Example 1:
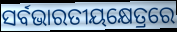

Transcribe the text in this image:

ସର୍ବଭାରତୀୟକ୍ଷେତ୍ରରେ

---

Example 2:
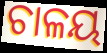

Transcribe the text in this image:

ଚାଳୟ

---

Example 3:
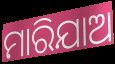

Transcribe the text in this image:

ମାରିଯାଅ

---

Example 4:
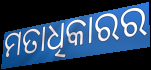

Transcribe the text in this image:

ମତାଧିକାରର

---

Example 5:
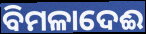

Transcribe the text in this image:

ବିମଳାଦେଈ